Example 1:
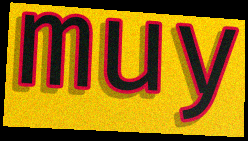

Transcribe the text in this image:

muy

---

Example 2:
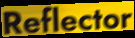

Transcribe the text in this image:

Reflector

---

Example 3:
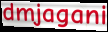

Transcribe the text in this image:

dmjagani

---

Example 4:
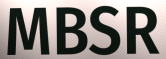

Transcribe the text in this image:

MBSR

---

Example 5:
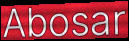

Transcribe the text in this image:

Abosar